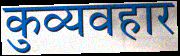
कुव्यवहार